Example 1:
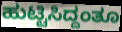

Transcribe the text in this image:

ಹುಟ್ಟಿಸಿದ್ದಂತೂ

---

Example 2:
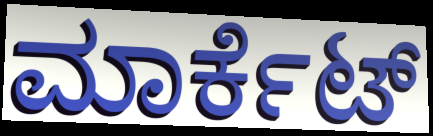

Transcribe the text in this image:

ಮಾರ್ಕೆಟ್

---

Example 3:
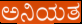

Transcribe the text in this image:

ಅನಿಯತ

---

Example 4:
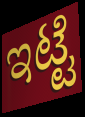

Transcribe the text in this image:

ಇಟ್ಟೆ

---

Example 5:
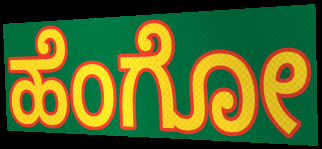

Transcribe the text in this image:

ಹೆಂಗೋ